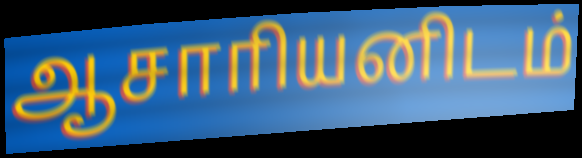
ஆசாரியனிடம்